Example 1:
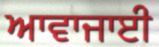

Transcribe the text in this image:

ਆਵਾਜਾਈ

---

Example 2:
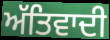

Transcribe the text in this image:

ਅੱਤਿਵਾਦੀ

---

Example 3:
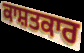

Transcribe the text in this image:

ਕਾਸ਼ਤਕਾਰ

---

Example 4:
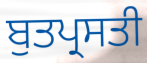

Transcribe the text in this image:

ਬੁਤਪ੍ਰਸਤੀ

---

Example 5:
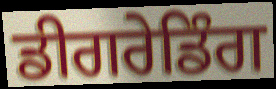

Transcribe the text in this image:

ਡੀਗਰੇਡਿੰਗ